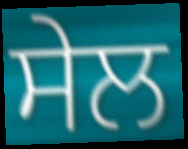
ਸੇਲ